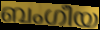
ബംഗീയ